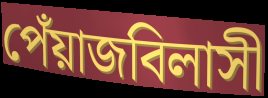
পেঁয়াজবিলাসী